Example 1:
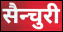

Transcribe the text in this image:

सैन्चुरी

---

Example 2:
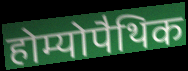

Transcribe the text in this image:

होम्योपैथिक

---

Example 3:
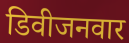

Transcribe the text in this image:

डिवीजनवार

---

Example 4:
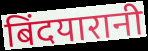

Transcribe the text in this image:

बिंदयारानी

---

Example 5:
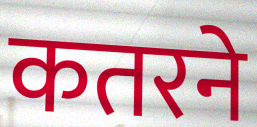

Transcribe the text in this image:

कतरने